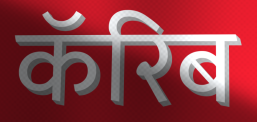
कॅरिब